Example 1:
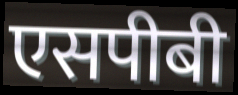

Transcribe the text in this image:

एसपीबी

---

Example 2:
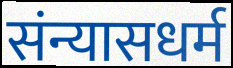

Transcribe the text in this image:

संन्यासधर्म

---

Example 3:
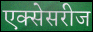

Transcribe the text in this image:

एक्सेसरीज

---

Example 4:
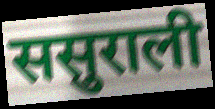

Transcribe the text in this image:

ससुराली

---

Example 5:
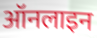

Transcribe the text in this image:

ऑनलाइन